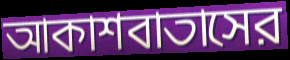
আকাশবাতাসের